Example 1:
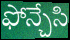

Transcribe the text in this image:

ఫోన్చేసి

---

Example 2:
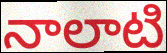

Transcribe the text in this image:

నాలాటి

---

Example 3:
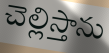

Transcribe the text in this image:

చెల్లిస్తాను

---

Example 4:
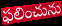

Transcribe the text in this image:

ఫలించును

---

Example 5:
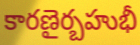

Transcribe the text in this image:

కారణైర్బహుభీ